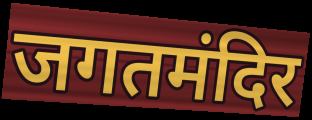
जगतमंदिर